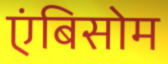
एंबिसोम